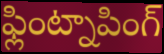
ఫ్లింట్నాపింగ్